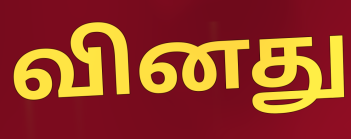
வினது